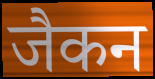
जैकन